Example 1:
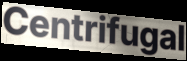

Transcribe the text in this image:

Centrifugal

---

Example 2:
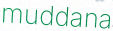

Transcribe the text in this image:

muddana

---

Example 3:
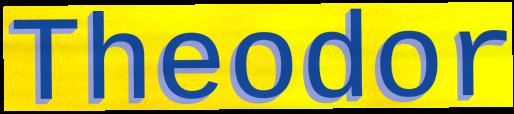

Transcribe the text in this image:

Theodor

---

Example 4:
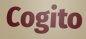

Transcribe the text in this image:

Cogito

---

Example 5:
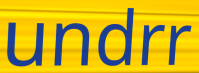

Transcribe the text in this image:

undrr